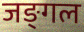
जङ्गल